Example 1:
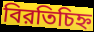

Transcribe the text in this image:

বিরতিচিহ্ন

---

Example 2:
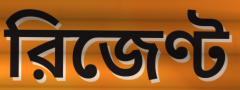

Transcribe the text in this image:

রিজেণ্ট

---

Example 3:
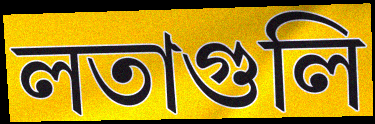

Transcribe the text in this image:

লতাগুলি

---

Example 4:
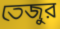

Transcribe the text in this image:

তেজুর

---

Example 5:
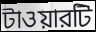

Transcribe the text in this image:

টাওয়ারটি